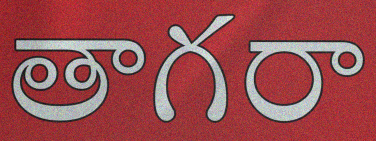
తాగరా